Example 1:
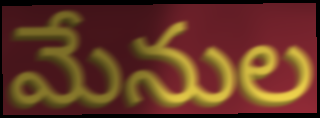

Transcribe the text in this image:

మేనుల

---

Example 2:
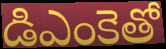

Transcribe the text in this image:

డిఎంకెతో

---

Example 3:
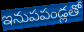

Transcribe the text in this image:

ఇనుపపండ్లతో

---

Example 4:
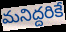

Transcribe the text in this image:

మనిద్దరికే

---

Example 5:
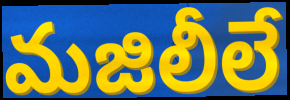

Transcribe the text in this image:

మజిలీలే